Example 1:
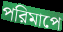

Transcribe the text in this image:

পরিমাপে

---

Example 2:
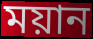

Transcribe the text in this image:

ময়ান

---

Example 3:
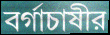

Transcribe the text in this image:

বর্গাচাষীর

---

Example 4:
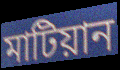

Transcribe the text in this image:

মাটিয়ান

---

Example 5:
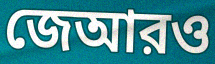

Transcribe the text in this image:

জেআরও